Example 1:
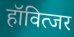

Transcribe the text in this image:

हॉवित्जर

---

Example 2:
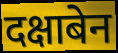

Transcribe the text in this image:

दक्षाबेन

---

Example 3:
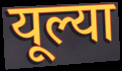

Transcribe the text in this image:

यूल्या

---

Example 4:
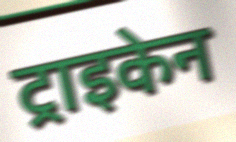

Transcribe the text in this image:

ट्राइकेन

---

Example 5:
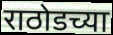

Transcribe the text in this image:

राठोडच्या